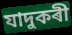
যাদুকৰী